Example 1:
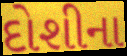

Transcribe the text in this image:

દોશીના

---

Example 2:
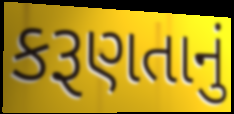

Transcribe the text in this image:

કરૂણતાનું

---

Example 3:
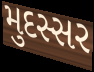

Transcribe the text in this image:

મુદસ્સર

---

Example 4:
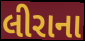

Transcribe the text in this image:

લીરાના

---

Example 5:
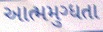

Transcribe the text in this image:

આત્મમુગ્ધતા